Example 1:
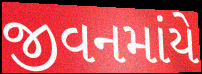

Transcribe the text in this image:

જીવનમાંયે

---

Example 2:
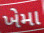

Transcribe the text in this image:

ખેમા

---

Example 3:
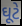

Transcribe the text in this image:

ઘૂટે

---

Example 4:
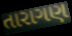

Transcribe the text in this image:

તારાગણ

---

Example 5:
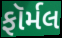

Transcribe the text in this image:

ફૉર્મલ